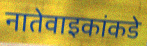
नातेवाइकांकडे